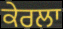
ਕੇਰਲਾ